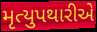
મૃત્યુપથારીએ